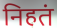
निहतं